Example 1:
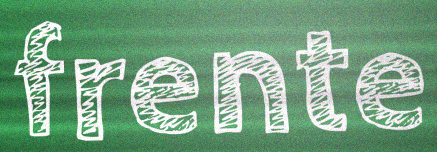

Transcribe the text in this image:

frente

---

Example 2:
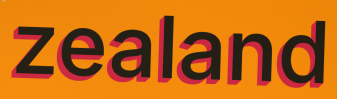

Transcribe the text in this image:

zealand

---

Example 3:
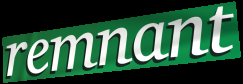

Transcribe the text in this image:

remnant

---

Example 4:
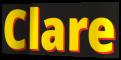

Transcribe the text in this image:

Clare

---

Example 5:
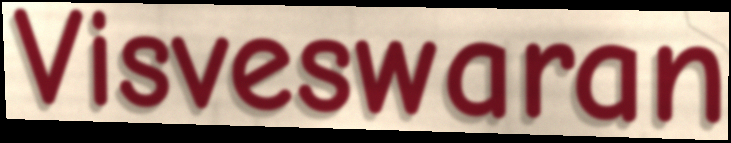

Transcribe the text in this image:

Visveswaran